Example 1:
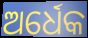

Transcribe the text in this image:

ଅର୍ଧେକ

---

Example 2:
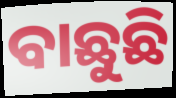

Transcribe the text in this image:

ବାଛୁଛି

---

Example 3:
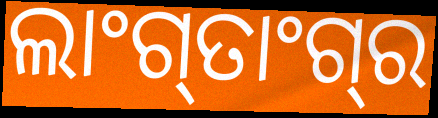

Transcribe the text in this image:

ଲାଂଗ୍‍ତାଂଗ୍‍ର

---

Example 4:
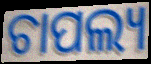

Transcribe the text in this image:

ଚାପଲ୍ୟ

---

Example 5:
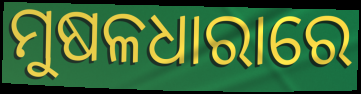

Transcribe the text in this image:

ମୁଷଳଧାରାରେ